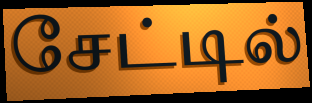
சேட்டில்